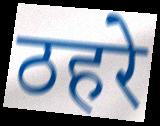
ठहरे